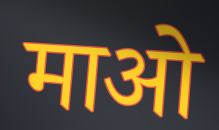
माओ